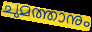
ചുമത്താനും